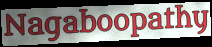
Nagaboopathy